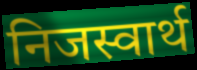
निजस्वार्थ